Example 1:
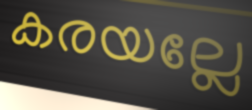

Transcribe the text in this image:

കരയല്ലേ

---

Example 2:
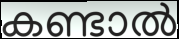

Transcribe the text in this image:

കണ്ടാൽ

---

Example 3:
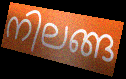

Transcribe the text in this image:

നിലങ്ങ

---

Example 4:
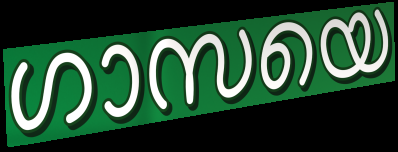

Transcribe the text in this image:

ഗാസയെ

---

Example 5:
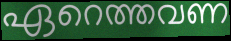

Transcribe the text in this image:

ഏറെത്തവണ